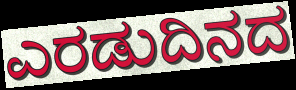
ಎರಡುದಿನದ